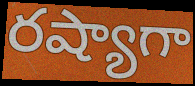
రష్యాగా